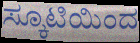
ಸ್ಕೂಟಿಯಿಂದ